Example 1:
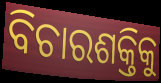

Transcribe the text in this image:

ବିଚାରଶକ୍ତିକୁ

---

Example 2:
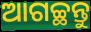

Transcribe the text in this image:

ଆଗଚ୍ଛନ୍ତୁ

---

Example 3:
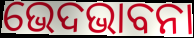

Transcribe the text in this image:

ଭେଦଭାବନା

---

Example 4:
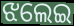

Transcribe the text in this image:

ଝଲେଇ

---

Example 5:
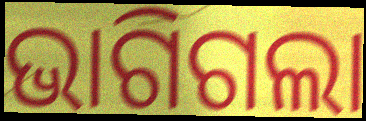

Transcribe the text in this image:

ଭାଗିଗଲା